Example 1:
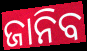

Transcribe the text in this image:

ଜାନିବ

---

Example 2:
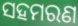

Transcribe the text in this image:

ସହମରଣ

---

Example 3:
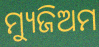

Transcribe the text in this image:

ମ୍ଯୁଜିଅମ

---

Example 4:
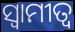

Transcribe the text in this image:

ସ୍ଵାମୀତ୍ବ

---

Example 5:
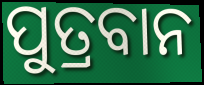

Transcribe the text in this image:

ପୁତ୍ରବାନ